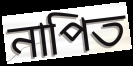
নাপিত